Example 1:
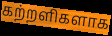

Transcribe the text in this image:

கற்றளிகளாக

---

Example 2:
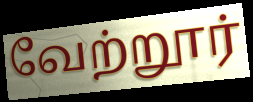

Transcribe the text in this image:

வேற்றூர்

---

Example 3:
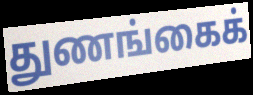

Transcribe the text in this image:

துணங்கைக்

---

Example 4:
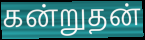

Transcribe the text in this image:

கன்றுதன்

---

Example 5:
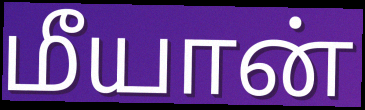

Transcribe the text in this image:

மீயான்